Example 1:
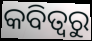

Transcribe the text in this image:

କବିତ୍ଵରୁ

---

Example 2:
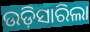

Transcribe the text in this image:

ଉଡ଼ିସାରିଲା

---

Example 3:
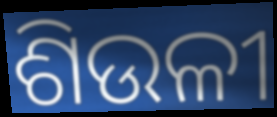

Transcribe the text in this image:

ଶିଉଳୀ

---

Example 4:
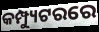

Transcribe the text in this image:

କମ୍ପ୍ୟୁଟରରେ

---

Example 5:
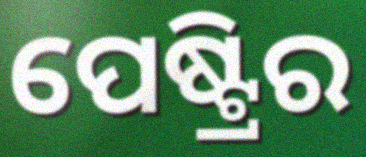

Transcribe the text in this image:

ପେଷ୍ଟ୍ରିର